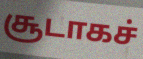
சூடாகச்